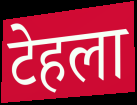
टेहला